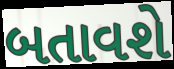
બતાવશે